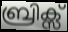
ബ്രിക്സ്